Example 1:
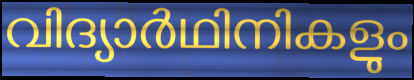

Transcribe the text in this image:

വിദ്യാർഥിനികളും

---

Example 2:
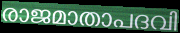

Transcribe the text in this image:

രാജമാതാപദവി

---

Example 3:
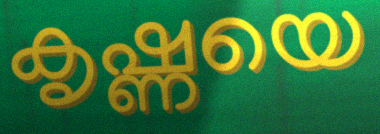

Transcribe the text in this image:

കൃഷ്ണയെ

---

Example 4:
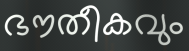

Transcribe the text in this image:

ഭൗതീകവും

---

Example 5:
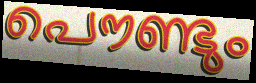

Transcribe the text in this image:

പൌണ്ടും